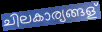
ചിലകാര്യങ്ങള്